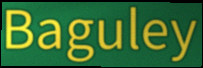
Baguley